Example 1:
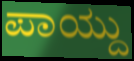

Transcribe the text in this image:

ಪಾಯ್ದು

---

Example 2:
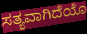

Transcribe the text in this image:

ಸತ್ಯವಾಗಿದೆಯೊ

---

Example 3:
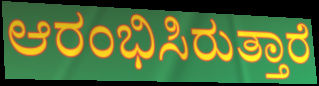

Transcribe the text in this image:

ಆರಂಭಿಸಿರುತ್ತಾರೆ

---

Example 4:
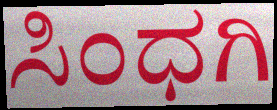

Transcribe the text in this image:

ಸಿಂಧಗಿ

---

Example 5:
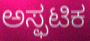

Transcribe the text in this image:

ಅಸ್ಫಟಿಕ